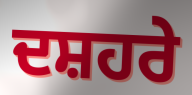
ਦਸ਼ਹਰੇ